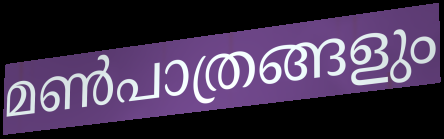
മൺപാത്രങ്ങളും